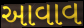
આવાવ